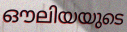
ഔലിയയുടെ